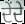
ਦੇਂਦੇ